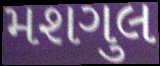
મશગુલ